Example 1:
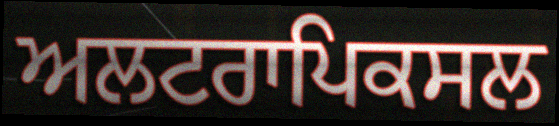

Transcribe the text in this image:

ਅਲਟਰਾਪਿਕਸਲ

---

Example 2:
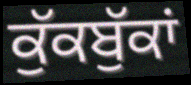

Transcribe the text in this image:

ਕੁੱਕਬੁੱਕਾਂ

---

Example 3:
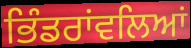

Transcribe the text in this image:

ਭਿੰਡਰਾਂਵਲਿਆਂ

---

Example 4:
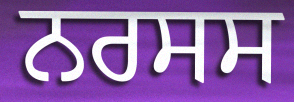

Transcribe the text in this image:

ਨਰਸਸ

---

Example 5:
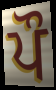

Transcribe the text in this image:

ਪੌ